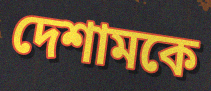
দেশামকে